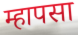
म्हापसा